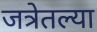
जत्रेतल्या